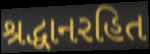
શ્રદ્ધાનરહિત